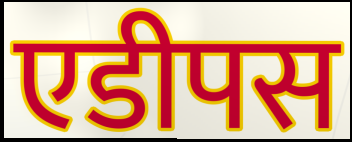
एडीपस